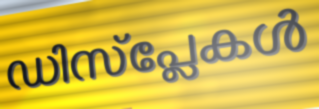
ഡിസ്പ്ലേകൾ